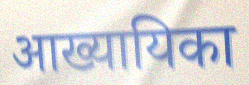
आख्यायिका